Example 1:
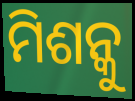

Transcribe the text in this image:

ମିଶନ୍କୁ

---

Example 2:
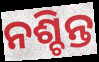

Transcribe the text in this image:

ନଶ୍ଚିନ୍ତ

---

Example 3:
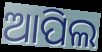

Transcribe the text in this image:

ଆପିଲ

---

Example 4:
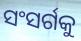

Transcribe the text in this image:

ସଂସର୍ଗକୁ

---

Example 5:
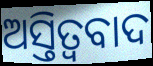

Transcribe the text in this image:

ଅସ୍ତିତ୍ବବାଦ